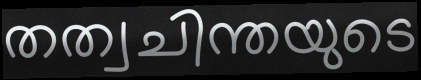
തത്വചിന്തയുടെ